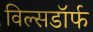
विल्सडॉर्फ